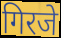
गिरजे